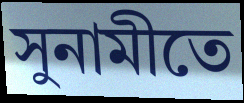
সুনামীতে